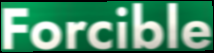
Forcible